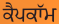
ਕੈਪਕਾੱਮ